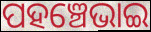
ପହଞ୍ଚେଭାଇ